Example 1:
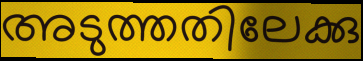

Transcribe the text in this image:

അടുത്തതിലേക്കു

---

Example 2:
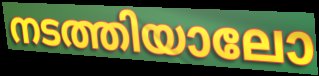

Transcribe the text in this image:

നടത്തിയാലോ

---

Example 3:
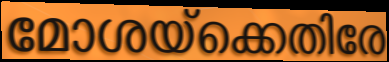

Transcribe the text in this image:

മോശയ്‌ക്കെതിരേ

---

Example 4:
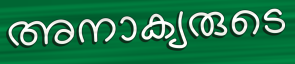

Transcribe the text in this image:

അനാക്യരുടെ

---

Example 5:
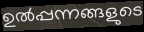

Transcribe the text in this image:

ഉൽപ്പന്നങ്ങളുടെ